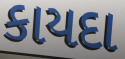
કાયદા